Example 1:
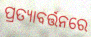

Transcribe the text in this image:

ପ୍ରତ୍ୟାବର୍ତ୍ତନରେ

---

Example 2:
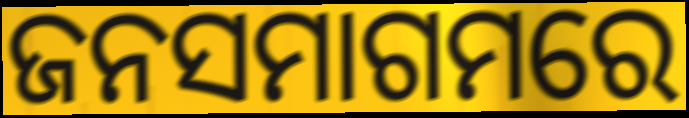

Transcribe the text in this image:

ଜନସମାଗମରେ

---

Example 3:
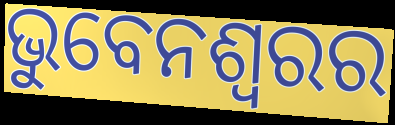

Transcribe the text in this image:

ଭୁବେନଶ୍ବରର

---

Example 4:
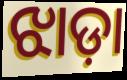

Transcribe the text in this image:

ଝାଡ଼ା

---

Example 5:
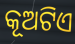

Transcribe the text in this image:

କୂଅଟିଏ